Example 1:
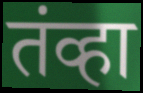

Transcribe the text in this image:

तंव्हा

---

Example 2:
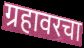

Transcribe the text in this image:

ग्रहावरचा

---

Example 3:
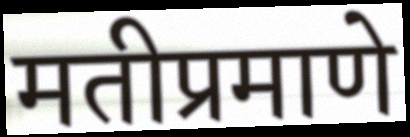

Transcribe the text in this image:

मतीप्रमाणे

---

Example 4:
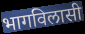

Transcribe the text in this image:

भागविलासी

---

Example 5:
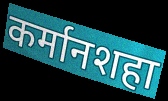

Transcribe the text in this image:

कर्मानशहा